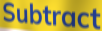
Subtract